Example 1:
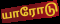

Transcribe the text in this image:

யாரோடு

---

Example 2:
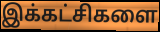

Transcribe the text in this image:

இக்கட்சிகளை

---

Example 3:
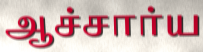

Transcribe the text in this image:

ஆச்சார்ய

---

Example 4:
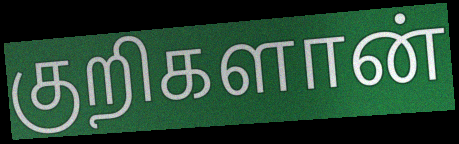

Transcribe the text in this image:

குறிகளான்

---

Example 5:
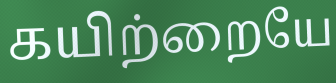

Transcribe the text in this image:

கயிற்றையே